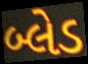
બ્લેડ